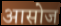
आसोज